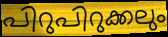
പിറുപിറുക്കലും